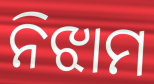
ନିଝାମ